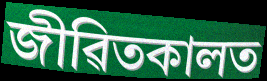
জীৱিতকালত